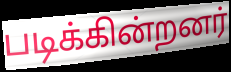
படிக்கின்றனர்